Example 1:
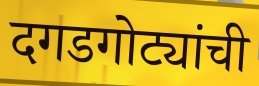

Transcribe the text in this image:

दगडगोट्यांची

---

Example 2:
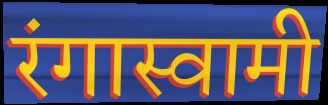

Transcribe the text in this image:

रंगास्वामी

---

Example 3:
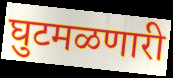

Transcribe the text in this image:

घुटमळणारी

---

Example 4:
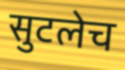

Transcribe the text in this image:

सुटलेच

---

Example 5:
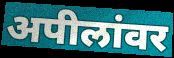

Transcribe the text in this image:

अपीलांवर